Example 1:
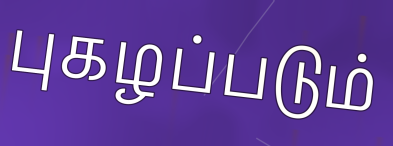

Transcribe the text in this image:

புகழப்படும்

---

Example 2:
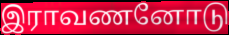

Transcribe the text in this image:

இராவணனோடு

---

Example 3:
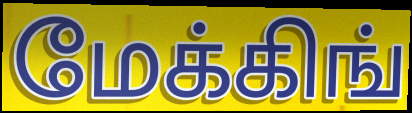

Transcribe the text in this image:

மேக்கிங்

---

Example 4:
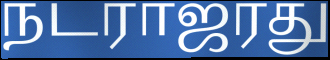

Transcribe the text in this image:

நடராஜரது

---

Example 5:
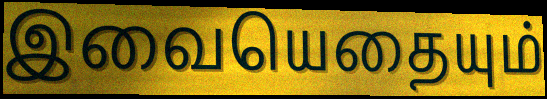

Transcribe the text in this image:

இவையெதையும்